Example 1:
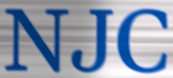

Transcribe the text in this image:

NJC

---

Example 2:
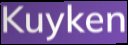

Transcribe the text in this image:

Kuyken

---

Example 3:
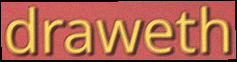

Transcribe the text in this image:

draweth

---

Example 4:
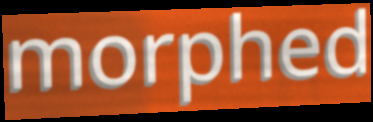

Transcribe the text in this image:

morphed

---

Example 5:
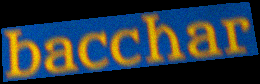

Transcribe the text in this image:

bacchar